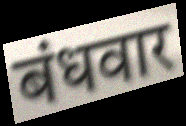
बंधवार